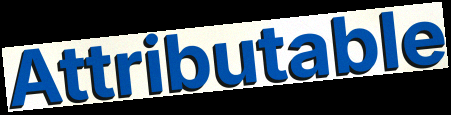
Attributable